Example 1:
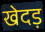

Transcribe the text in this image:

खेदड़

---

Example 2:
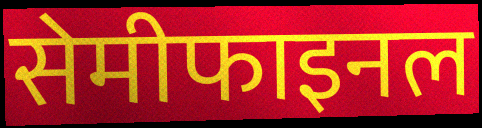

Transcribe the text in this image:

सेमीफाइनल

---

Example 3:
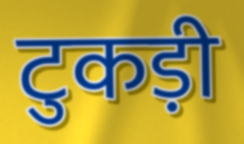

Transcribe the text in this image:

टुकड़ी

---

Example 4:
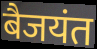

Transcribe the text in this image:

बैजयंत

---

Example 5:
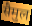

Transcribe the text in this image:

सैमुल